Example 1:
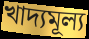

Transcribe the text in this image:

খাদ্যমূল্য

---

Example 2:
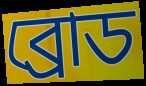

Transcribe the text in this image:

ব্রোড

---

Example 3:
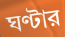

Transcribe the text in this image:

ঘণ্টার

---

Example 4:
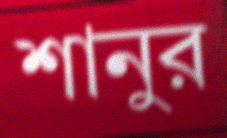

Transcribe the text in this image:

শানুর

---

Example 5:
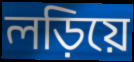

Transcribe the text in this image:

লড়িয়ে